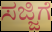
ಸಜ್ಜಿಗೆ